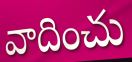
వాదించు